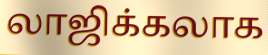
லாஜிக்கலாக